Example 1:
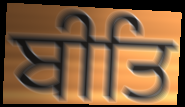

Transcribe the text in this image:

ਬੀਤਿ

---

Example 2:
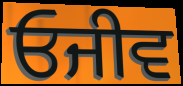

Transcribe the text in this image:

ਓਜੀਵ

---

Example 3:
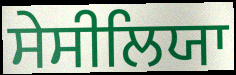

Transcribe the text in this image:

ਸੇਸੀਲਿਯਾ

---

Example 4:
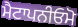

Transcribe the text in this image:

ਮੈਟਾਪਨੀਓਮੋ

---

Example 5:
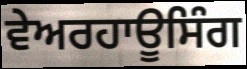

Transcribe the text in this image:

ਵੇਅਰਹਾਊਸਿੰਗ